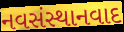
નવસંસ્થાનવાદ